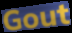
Gout